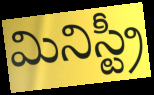
మినిస్ట్రీ